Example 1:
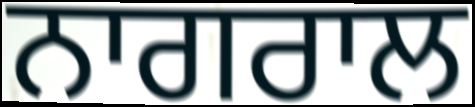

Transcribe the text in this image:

ਨਾਗਰਾਲ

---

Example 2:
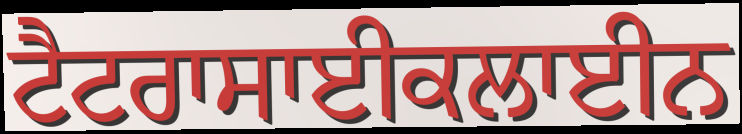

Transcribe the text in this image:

ਟੈਟਰਾਸਾਈਕਲਾਈਨ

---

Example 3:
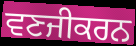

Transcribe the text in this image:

ਵਣਜੀਕਰਨ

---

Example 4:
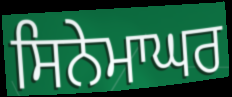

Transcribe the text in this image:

ਸਿਨੇਮਾਘਰ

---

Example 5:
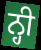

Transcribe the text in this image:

ਨ੍ਹੀ